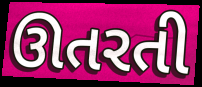
ઊતરતી